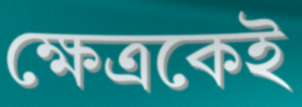
ক্ষেত্রকেই